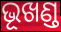
ଭୂଖଣ୍ଡ